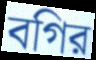
বগির